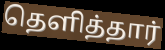
தெளித்தார்